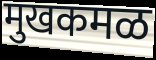
मुखकमळ